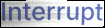
Interrupt